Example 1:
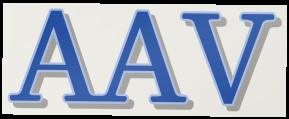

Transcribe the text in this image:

AAV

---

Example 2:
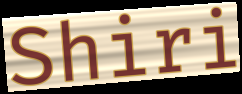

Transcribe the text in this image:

Shiri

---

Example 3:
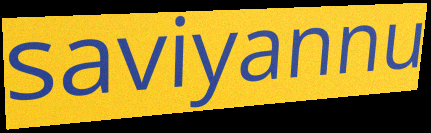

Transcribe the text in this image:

saviyannu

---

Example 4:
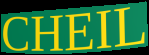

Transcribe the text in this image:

CHEIL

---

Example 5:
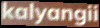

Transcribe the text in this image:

kalyangii